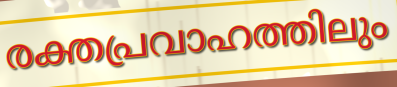
രക്തപ്രവാഹത്തിലും